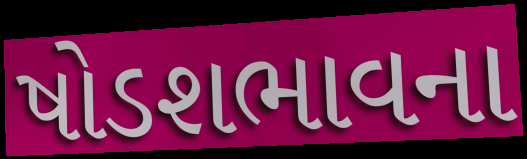
ષોડશભાવના